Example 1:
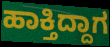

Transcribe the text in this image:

ಹಾಕ್ತಿದ್ದಾಗ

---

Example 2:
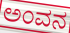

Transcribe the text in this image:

ಅಂವನ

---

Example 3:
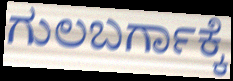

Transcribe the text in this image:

ಗುಲಬರ್ಗಾಕ್ಕೆ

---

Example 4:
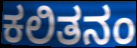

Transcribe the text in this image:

ಕಲಿತನಂ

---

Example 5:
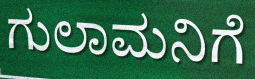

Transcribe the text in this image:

ಗುಲಾಮನಿಗೆ